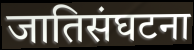
जातिसंघटना